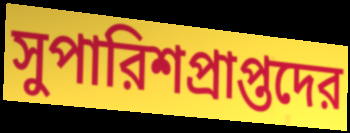
সুপারিশপ্রাপ্তদের